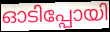
ഓടിപ്പോയി